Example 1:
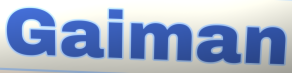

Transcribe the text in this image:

Gaiman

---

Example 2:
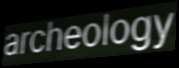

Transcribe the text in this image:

archeology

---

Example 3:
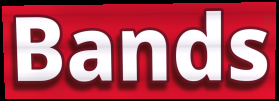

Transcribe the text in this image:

Bands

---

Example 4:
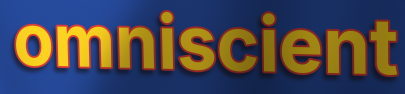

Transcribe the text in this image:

omniscient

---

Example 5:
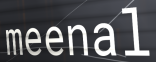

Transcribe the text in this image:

meenal